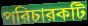
পরিচারকটি